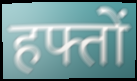
हफ्तों